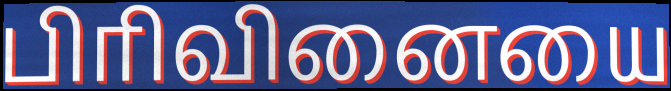
பிரிவினையை